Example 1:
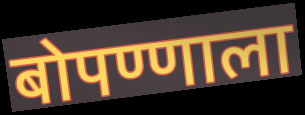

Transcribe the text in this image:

बोपण्णाला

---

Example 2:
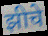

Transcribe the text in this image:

झीचे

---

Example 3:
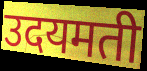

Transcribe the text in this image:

उदयमती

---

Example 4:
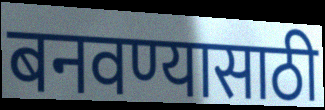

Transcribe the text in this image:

बनवण्‍यासाठी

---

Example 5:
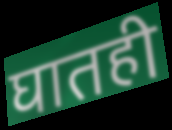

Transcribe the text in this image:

घातही